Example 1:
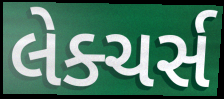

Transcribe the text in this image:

લેક્ચર્સ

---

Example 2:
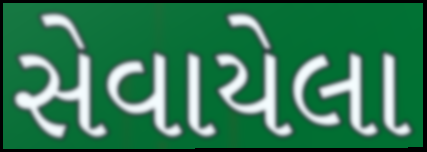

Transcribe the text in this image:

સેવાયેલા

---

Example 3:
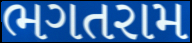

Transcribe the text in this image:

ભગતરામ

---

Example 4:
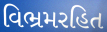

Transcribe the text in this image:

વિભ્રમરહિત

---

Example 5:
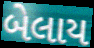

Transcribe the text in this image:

બેલાય